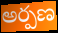
అర్పణ